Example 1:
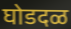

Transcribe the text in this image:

घोडदळ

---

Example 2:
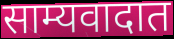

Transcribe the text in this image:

साम्यवादात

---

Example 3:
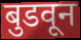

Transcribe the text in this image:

बुडवून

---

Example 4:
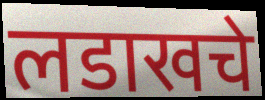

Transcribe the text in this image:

लडाखचे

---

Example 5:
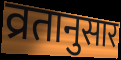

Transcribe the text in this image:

व्रतानुसार